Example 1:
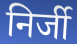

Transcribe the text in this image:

निर्जी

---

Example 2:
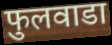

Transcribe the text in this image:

फुलवाडा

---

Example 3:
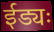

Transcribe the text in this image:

ईड्यः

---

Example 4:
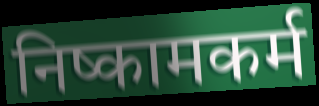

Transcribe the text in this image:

निष्कामकर्म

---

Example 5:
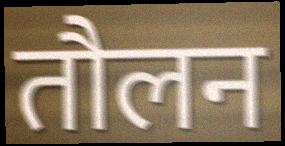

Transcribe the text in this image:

तौलन